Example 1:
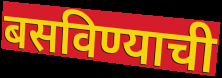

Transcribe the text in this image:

बसविण्याची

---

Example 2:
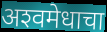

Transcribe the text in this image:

अश्‍वमेधाचा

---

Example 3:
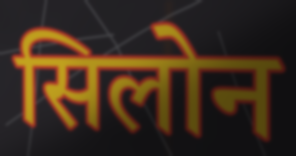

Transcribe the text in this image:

सिलोन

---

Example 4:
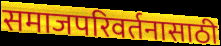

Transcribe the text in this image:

समाजपरिवर्तनासाठी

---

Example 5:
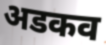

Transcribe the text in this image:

अडकव